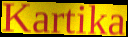
Kartika